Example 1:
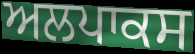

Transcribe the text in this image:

ਅਲਪਾਕਸ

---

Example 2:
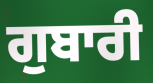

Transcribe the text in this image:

ਗੁਬਾਰੀ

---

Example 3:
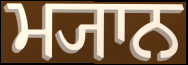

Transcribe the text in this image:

ਮ੍ਯਾਨ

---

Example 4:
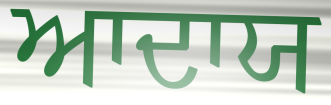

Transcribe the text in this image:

ਆਦਾਯ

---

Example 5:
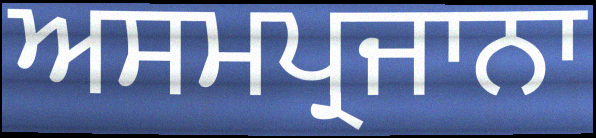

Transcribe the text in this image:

ਅਸਮਪ੍ਰਜਾਨਾ